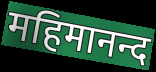
महिमानन्द